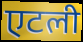
एटली